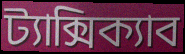
ট্যাক্সিক্যাব